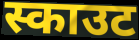
स्काउट